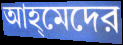
আহ্‌মেদের